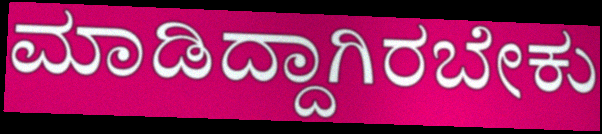
ಮಾಡಿದ್ದಾಗಿರಬೇಕು